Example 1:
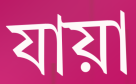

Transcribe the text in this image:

যায়া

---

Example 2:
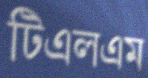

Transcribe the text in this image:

টিএলএম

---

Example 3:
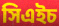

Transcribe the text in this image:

সিএইচ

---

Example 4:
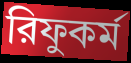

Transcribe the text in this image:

রিফুকর্ম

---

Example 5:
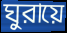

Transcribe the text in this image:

ঘুরায়ে